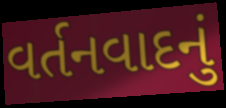
વર્તનવાદનું